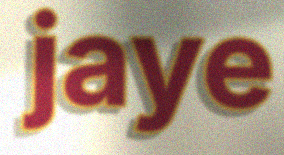
jaye